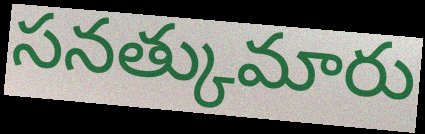
సనత్కుమారు